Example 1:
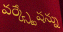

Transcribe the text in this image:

వర్క్స్టేషన్ను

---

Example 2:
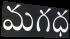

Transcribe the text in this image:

మగధ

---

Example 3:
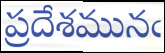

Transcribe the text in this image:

ప్రదేశమునఁ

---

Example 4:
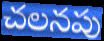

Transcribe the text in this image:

చలనపు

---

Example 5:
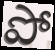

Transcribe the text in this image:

పో